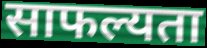
साफल्यता